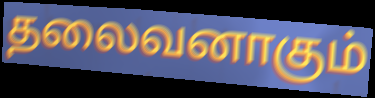
தலைவனாகும்